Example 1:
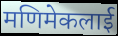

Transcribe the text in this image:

मणिमेकलाई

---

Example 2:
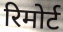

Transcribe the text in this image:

रिमोर्ट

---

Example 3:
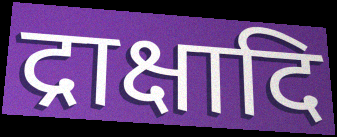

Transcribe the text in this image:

द्राक्षादि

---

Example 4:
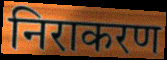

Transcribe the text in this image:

निराकरण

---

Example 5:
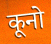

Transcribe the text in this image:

कूनो